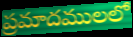
ప్రమాదములలో